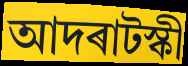
আদৰাটস্কী